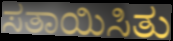
ಸತಾಯಿಸಿತು